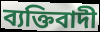
ব্যক্তিবাদী